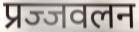
प्रज्‍जवलन